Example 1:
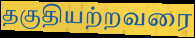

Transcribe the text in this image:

தகுதியற்றவரை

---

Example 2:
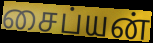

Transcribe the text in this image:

சைப்யன்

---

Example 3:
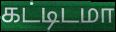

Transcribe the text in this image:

கட்டிடமா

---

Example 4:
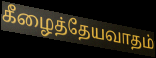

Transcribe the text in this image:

கீழைத்தேயவாதம்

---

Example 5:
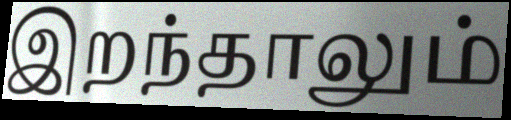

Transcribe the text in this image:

இறந்தாலும்